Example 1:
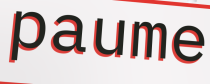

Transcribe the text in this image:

paume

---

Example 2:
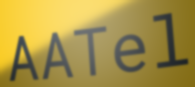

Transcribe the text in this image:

AATel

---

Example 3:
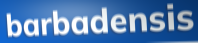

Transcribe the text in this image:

barbadensis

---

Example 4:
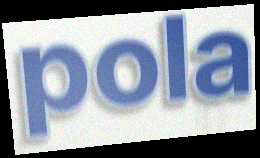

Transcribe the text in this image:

pola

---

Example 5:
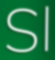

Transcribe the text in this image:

Sl